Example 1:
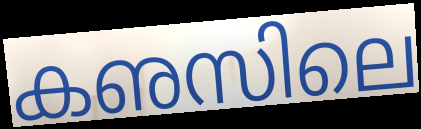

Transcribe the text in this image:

കഌസിലെ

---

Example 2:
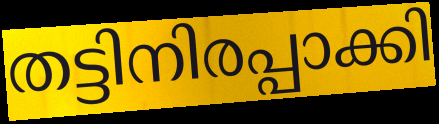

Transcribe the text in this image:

തട്ടിനിരപ്പാക്കി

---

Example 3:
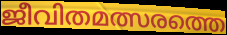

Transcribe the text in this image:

ജീവിതമത്സരത്തെ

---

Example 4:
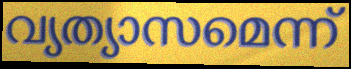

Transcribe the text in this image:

വ്യത്യാസമെന്ന്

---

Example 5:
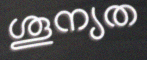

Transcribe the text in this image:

ശൂന്യത